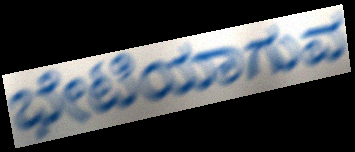
ಭೇಟಿಯಾಗುವ